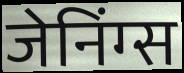
जेनिंग्स